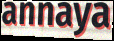
annaya